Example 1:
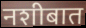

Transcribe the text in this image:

नशीबात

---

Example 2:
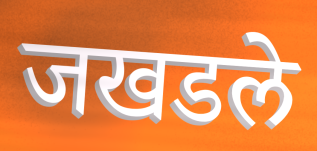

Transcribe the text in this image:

जखडले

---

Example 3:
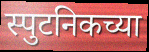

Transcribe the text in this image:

स्पुटनिकच्या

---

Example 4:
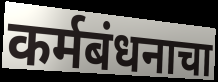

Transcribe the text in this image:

कर्मबंधनाचा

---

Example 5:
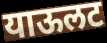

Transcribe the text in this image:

याऊलट